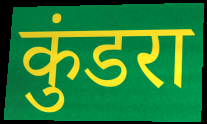
कुंडरा